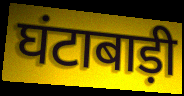
घंटाबाड़ी